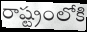
రాష్ట్రంలోకి